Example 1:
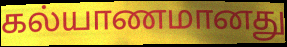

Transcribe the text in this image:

கல்யாணமானது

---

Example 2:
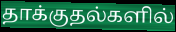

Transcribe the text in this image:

தாக்குதல்களில்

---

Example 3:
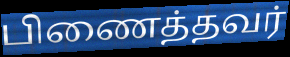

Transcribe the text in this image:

பிணைத்தவர்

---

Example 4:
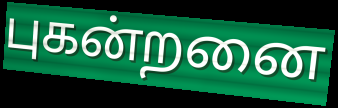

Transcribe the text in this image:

புகன்றனை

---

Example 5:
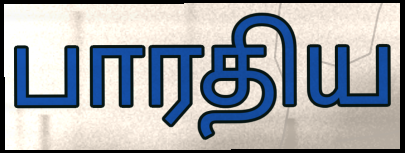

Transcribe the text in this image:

பாரதிய